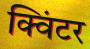
क्विंटर